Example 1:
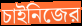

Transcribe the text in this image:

চাইনিজের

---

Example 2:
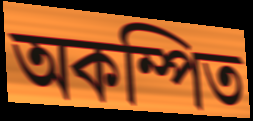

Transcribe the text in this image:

অকম্পিত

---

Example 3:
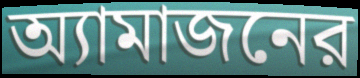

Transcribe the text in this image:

অ্যামাজনের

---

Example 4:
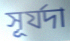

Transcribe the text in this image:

সূর্যদা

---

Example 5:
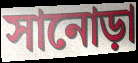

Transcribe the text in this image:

সানোড়া